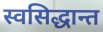
स्वसिद्धान्त